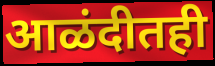
आळंदीतही